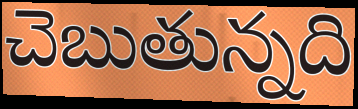
చెబుతున్నది